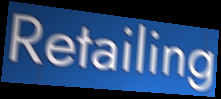
Retailing